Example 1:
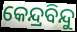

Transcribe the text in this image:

କେନ୍ଦ୍ରବିନ୍ଦୁ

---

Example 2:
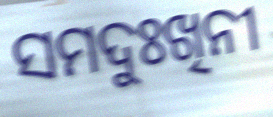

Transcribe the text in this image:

ସମଦୁଃଖିନୀ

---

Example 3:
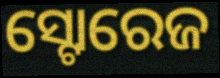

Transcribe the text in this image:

ସ୍ଟୋରେଜ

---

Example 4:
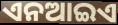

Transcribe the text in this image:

ଏନଆଇଏ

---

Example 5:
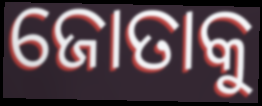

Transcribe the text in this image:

ଜୋତାକୁ